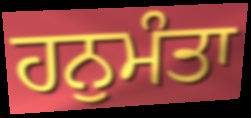
ਹਨੁਮੰਤਾ